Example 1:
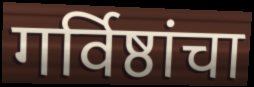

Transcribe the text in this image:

गर्विष्ठांचा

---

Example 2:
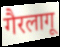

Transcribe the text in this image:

गैरलागू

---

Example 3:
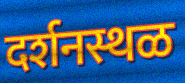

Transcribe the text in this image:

दर्शनस्थळ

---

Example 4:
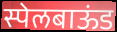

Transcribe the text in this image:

स्पेलबाऊंड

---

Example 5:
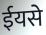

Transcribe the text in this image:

ईयसे